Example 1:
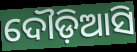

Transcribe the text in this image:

ଦୌଡ଼ିଆସି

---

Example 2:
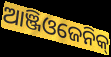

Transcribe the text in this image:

ଆଞ୍ଜିଓଜେନିକ୍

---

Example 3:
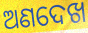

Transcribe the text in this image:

ଅଣଦେଖ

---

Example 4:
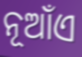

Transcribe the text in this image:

ନୂଆଁଏ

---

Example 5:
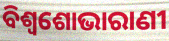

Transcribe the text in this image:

ବିଶ୍ୱଶୋଭାରାଣୀ